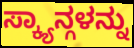
ಸ್ಕ್ಯಾನ್ಗಳನ್ನು